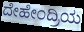
ದೇಹೇಂದ್ರಿಯ